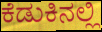
ಕೆಡುಕಿನಲ್ಲಿ